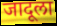
जादूला